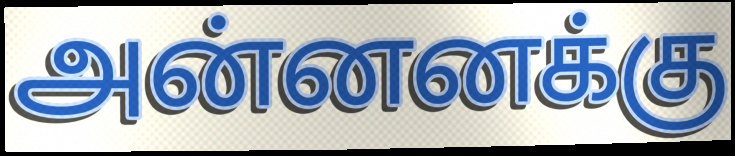
அன்னனக்கு